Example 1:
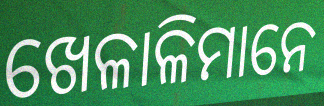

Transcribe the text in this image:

ଖେଳାଳିମାନେ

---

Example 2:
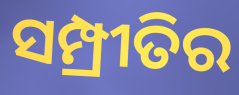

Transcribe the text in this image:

ସମ୍ପ୍ରୀତିର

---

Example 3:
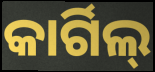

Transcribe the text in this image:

କାର୍ଗିଲ୍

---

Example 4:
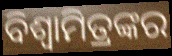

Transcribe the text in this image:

ବିଶ୍ୱାମିତ୍ରଙ୍କର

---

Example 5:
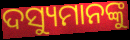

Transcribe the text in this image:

ଦସ୍ୟୁମାନଙ୍କୁ